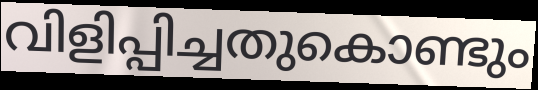
വിളിപ്പിച്ചതുകൊണ്ടും